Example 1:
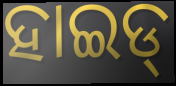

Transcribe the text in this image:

ହାଇଡ୍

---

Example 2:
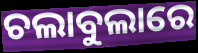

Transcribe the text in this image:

ଚଲାବୁଲାରେ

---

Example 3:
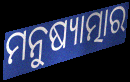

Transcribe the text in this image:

ମନୁଷ୍ୟାତ୍ମାର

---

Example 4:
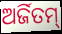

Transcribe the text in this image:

ଅର୍ଜିତମ୍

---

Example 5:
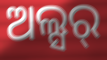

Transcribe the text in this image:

ଅଲ୍ସର୍